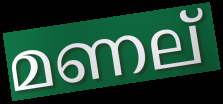
മണല്